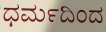
ಧರ್ಮದಿಂದ